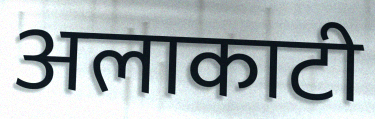
अलाकाटी